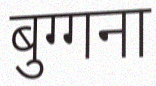
बुग्गना